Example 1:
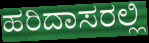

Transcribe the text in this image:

ಹರಿದಾಸರಲ್ಲಿ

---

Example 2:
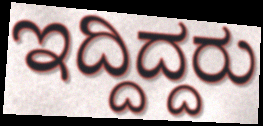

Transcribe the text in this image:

ಇದ್ದಿದ್ದರು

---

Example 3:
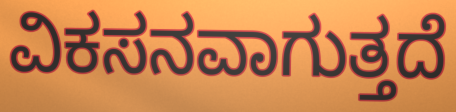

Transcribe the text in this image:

ವಿಕಸನವಾಗುತ್ತದೆ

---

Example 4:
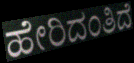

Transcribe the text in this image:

ಹೇರಿದಂತಿದೆ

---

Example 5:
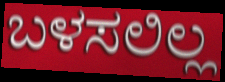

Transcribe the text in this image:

ಬಳಸಲಿಲ್ಲ